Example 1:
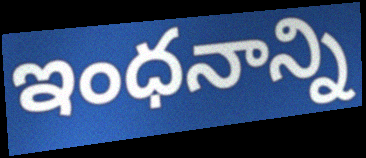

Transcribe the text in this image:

ఇంధనాన్ని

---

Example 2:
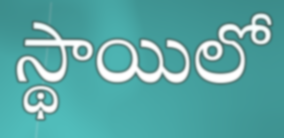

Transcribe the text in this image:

స్థాయిలో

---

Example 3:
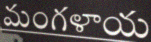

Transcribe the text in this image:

మంగళాయ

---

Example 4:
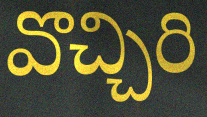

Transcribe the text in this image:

వొచ్చిరి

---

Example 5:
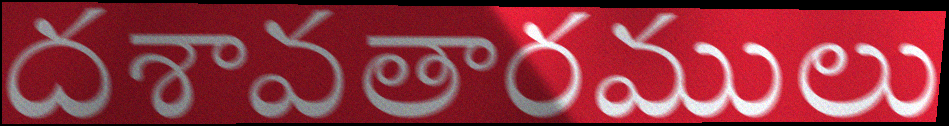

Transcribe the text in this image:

దశావతారములు